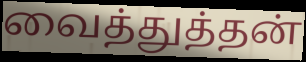
வைத்துத்தன்